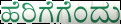
ಹೆರಿಗೆಗೆಂದು